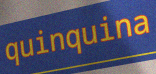
quinquina